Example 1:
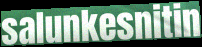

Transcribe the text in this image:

salunkesnitin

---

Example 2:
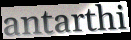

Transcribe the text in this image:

antarthi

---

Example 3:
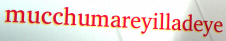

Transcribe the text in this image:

mucchumareyilladeye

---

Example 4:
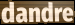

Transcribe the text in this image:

dandre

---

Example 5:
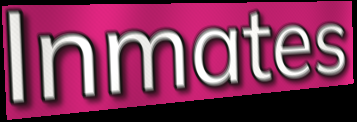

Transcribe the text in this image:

Inmates